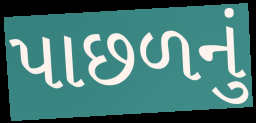
પાછળનું